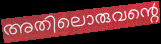
അതിലൊരുവന്റെ